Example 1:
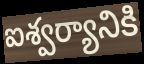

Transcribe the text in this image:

ఐశ్వర్యానికి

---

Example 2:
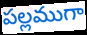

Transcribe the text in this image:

పల్లముగా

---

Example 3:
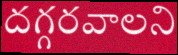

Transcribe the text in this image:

దగ్గరవాలని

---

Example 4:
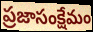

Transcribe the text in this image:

ప్రజాసంక్షేమం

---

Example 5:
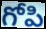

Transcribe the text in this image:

గోపి